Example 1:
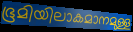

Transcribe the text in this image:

ഭൂമിയിലാകമാനമുള്ള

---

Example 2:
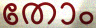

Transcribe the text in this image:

തോം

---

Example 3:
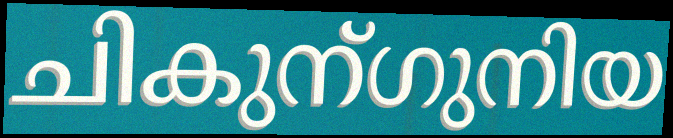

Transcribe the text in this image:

ചികുന്ഗുനിയ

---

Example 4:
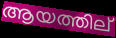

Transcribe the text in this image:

ആയത്തില്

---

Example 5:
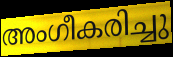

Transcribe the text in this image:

അംഗീകരിച്ചു